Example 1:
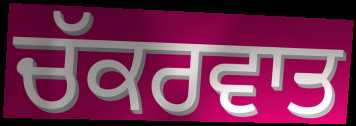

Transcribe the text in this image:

ਚੱਕਰਵਾਤ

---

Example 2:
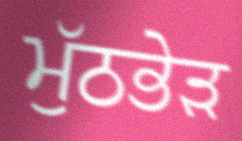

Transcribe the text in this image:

ਮੁੱਠਭੇੜ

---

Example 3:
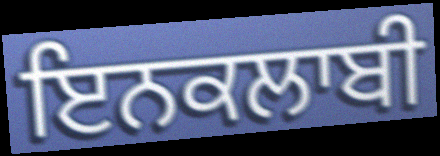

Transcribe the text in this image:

ਇਨਕਲਾਬੀ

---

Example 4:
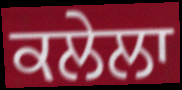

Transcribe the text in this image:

ਕਲੇਲਾ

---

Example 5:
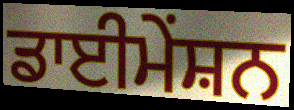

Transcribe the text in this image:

ਡਾਈਮੇਂਸ਼ਨ